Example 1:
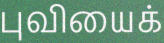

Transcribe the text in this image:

புவியைக்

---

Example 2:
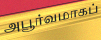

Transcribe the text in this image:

அபூர்வமாகப்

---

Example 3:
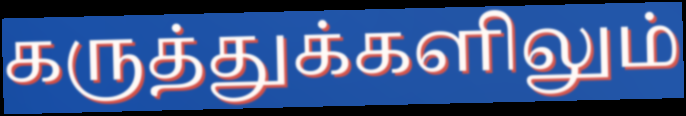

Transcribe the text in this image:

கருத்துக்களிலும்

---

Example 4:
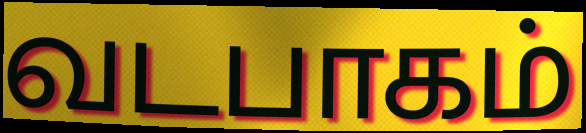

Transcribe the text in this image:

வடபாகம்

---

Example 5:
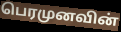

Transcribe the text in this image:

பெரமுனவின்